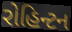
રોહિન્ટન